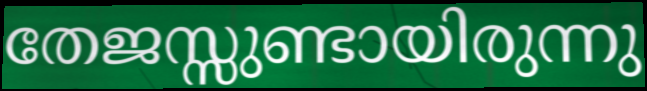
തേജസ്സുണ്ടായിരുന്നു